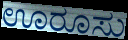
ಊರೂಸು